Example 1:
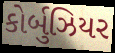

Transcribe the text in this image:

કોર્બુઝિયર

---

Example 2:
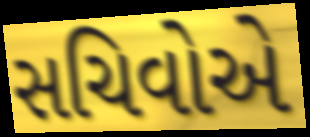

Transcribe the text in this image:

સચિવોએ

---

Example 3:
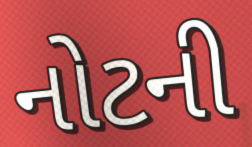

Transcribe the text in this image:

નોટની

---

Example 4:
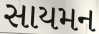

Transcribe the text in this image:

સાયમન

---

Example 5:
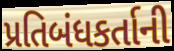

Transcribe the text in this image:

પ્રતિબંધકર્તાની